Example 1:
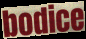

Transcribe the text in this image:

bodice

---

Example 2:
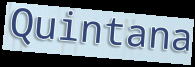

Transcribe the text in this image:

Quintana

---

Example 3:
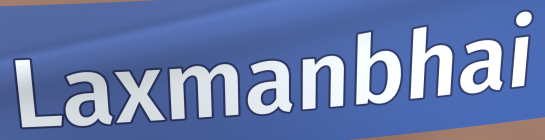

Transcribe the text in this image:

Laxmanbhai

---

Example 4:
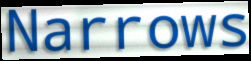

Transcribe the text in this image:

Narrows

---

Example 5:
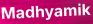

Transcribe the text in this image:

Madhyamik